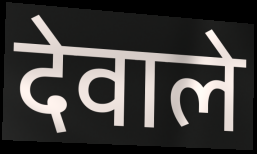
देवाले